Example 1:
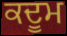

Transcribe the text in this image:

ਕਦੂਮ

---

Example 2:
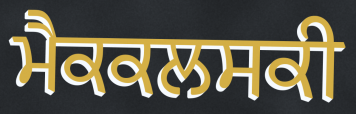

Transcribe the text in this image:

ਮੈਕਕਲਸਕੀ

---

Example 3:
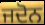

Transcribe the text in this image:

ਜਦੋਨ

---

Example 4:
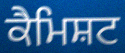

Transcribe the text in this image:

ਕੈਮਿਸ਼ਟ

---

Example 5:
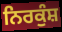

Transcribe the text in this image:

ਨਿਰਕੁੰਸ਼